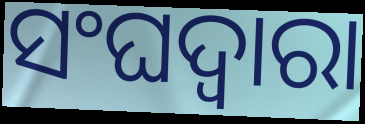
ସଂଘଦ୍ୱାରା